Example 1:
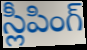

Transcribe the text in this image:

స్లీపింగ్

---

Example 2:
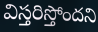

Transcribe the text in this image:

విస్తరిస్తోందని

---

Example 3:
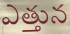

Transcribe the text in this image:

ఎత్తున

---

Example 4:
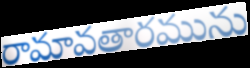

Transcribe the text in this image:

రామావతారమును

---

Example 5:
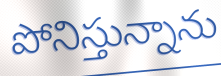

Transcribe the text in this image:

పోనిస్తున్నాను